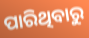
ପାରିଥିବାରୁ